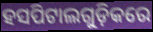
ହସପିଟାଲଗୁଡ଼ିକରେ